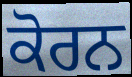
ਕੋਰਨ